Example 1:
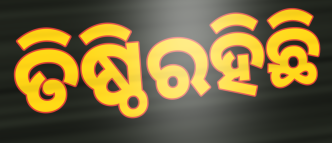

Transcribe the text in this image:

ତିଷ୍ଠିରହିଛି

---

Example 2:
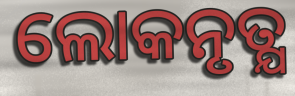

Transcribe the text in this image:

ଲୋକନୃତ୍ଯ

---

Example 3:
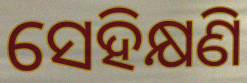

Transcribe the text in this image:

ସେହିକ୍ଷଣି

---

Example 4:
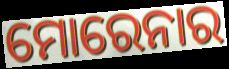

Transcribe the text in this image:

ମୋରେନାର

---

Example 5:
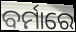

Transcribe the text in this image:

ବର୍ମାରେ